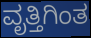
ವೃತ್ತಿಗಿಂತ